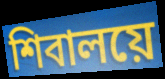
শিবালয়ে